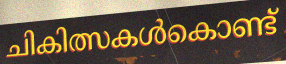
ചികിത്സകൾകൊണ്ട്